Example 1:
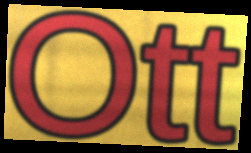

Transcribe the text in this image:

Ott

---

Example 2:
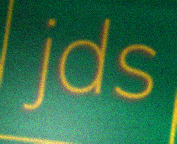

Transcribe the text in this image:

jds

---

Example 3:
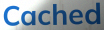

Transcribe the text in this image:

Cached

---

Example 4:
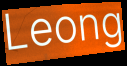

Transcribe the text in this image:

Leong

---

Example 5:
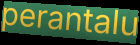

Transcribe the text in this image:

perantalu